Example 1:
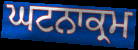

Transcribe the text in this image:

ਘਟਨਾਕ੍ਰਮ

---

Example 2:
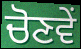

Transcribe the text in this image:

ਚੋਣਵੇਂ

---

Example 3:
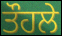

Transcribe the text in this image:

ਤੌਹਲੇ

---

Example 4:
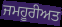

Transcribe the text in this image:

ਜਮਹੂਰੀਅਤ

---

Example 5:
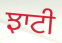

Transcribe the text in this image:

ਝਾਟੀ